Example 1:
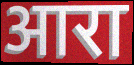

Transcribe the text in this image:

आरा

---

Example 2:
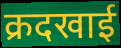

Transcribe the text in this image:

क्रदखाई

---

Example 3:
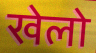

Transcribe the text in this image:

खेलो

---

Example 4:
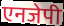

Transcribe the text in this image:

एनजेपी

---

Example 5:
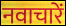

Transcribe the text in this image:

नवाचारें